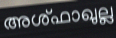
അശ്ഫാഖുല്ല